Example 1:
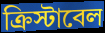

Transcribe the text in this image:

ক্রিস্টাবেল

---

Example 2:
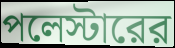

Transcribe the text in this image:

পলেস্টারের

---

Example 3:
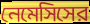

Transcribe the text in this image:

নেমেসিসের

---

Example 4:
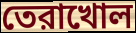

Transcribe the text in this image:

তেরাখোল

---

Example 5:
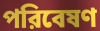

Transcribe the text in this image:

পরিবেষণ